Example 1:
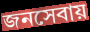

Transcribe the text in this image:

জনসেবায়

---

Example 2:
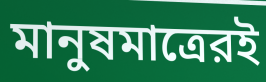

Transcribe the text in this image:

মানুষমাত্রেরই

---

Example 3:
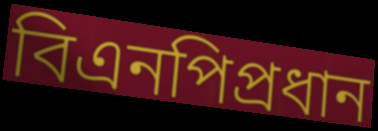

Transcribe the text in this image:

বিএনপিপ্রধান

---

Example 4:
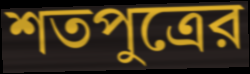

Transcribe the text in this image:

শতপুত্রের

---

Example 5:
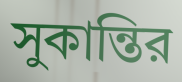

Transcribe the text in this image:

সুকান্তির